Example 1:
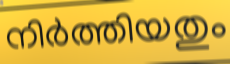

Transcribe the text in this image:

നിർത്തിയതും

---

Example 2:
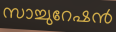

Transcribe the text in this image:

സാച്ചുറേഷൻ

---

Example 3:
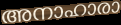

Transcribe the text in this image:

അനാഹാരാ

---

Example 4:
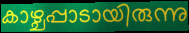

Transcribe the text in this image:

കാഴ്ചപ്പാടായിരുന്നു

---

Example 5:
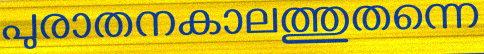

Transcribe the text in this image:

പുരാതനകാലത്തുതന്നെ